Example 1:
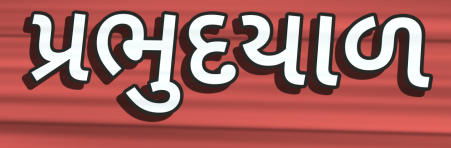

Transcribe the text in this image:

પ્રભુદયાળ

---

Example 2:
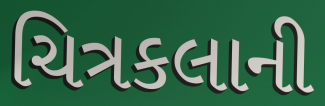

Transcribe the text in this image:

ચિત્રકલાની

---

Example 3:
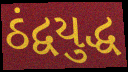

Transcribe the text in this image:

ઠંદ્વયુદ્ધ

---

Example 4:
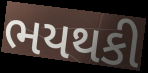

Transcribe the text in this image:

ભયથકી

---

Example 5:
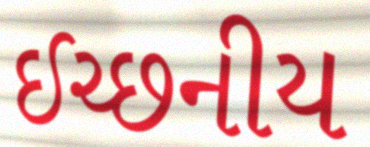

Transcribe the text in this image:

ઈચ્છનીય